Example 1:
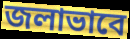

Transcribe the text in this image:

জলাভাবে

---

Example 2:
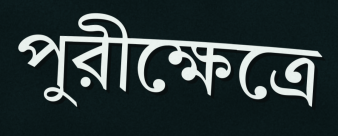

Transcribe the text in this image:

পুরীক্ষেত্রে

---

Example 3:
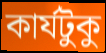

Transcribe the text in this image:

কার্যটুকু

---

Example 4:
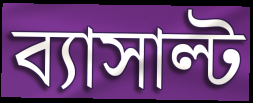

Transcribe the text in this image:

ব্যাসাল্ট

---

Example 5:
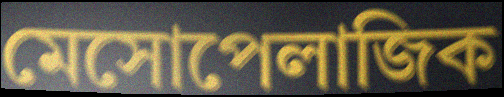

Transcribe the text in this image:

মেসোপেলাজিক